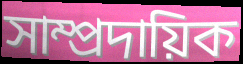
সাম্প্ৰদায়িক